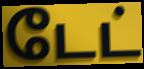
டேட்